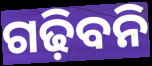
ଗଢ଼ିବନି